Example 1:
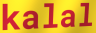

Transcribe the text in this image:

kalal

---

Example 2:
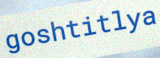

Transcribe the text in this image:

goshtitlya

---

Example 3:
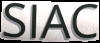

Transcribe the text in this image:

SIAC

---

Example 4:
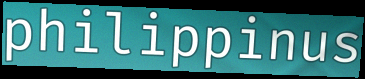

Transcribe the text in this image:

philippinus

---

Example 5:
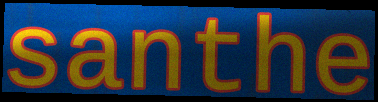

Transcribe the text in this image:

santhe